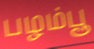
பழம்பூ